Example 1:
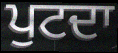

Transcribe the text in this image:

ਪੁਟਦਾ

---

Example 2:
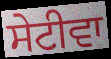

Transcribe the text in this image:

ਸੇਟੀਵਾ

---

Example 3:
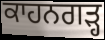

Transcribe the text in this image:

ਕਾਹਨਗੜ੍ਹ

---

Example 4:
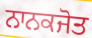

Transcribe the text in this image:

ਨਾਨਕਜੋਤ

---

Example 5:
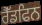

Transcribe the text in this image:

ਰੈੱਡਫਿਨ